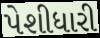
પેશીધારી